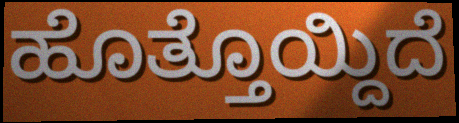
ಹೊತ್ತೊಯ್ದಿದೆ